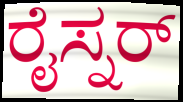
ರೈಸ್ನರ್